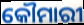
କୌମାରୀ